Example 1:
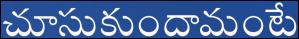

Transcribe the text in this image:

చూసుకుందామంటే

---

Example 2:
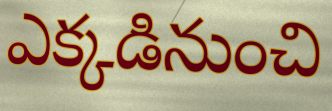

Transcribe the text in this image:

ఎక్కడినుంచి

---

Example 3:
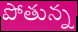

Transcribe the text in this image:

పోతున్న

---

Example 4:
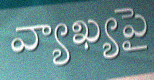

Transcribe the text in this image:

వ్యాఖ్యపై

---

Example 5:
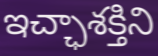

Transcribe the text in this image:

ఇచ్ఛాశక్తిని